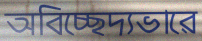
অবিচ্ছেদ্যভাৱে